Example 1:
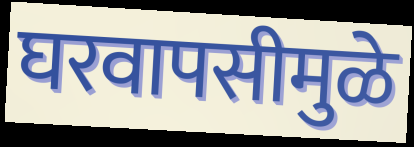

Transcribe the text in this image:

घरवापसीमुळे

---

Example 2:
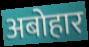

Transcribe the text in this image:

अबोहार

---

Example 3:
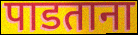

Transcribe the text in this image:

पाडताना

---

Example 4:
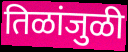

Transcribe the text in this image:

तिळांजुळी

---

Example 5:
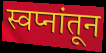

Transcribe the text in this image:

स्वप्नांतून